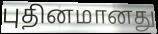
புதினமானது